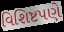
વિશિષ્ટપણે